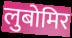
लुबोमिर